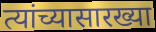
त्यांच्यासारख्या